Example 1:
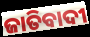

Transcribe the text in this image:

ଜାତିବାଦୀ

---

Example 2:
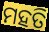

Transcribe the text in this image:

ମହତି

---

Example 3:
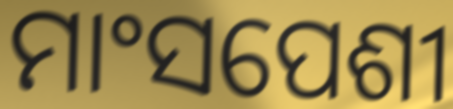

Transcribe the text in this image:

ମାଂସପେଶୀ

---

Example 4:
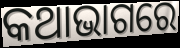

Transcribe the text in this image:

କଥାଭାଗରେ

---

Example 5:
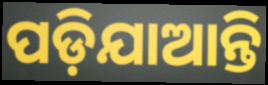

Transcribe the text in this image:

ପଡ଼ିଯାଆନ୍ତି